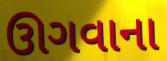
ઊગવાના